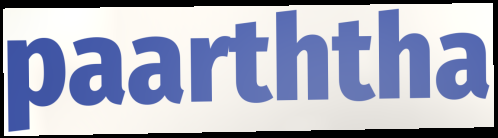
paarththa